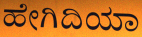
ಹೇಗಿದಿಯಾ